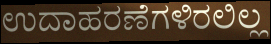
ಉದಾಹರಣೆಗಳಿರಲಿಲ್ಲ